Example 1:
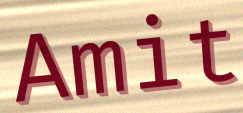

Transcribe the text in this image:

Amit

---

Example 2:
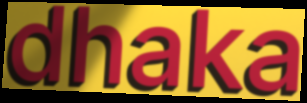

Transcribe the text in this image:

dhaka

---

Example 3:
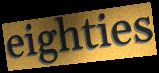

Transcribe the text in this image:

eighties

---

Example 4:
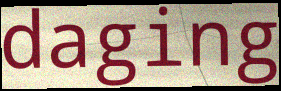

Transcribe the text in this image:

daging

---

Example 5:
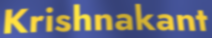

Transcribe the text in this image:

Krishnakant